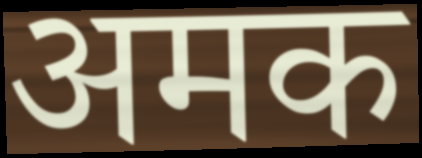
अमक